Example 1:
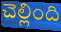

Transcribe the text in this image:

చెల్లింది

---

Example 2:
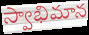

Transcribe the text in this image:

స్వాభిమాన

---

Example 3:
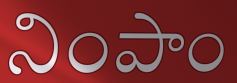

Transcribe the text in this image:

నింపాం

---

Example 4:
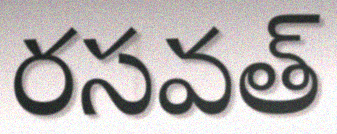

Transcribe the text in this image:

రసవత్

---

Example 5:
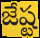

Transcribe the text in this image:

జేష్ట